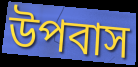
উপবাস